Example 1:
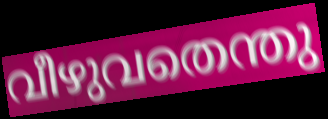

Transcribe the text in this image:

വീഴുവതെന്തു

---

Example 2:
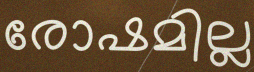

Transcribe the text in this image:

രോഷമില്ല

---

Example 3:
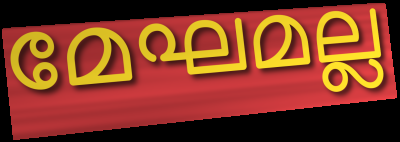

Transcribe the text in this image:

മേഘമല്ല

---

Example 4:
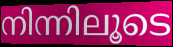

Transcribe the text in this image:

നിന്നിലൂടെ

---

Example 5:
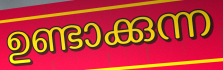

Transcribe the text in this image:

ഉണ്ടാക്കുന്ന